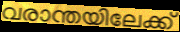
വരാന്തയിലേക്ക്